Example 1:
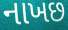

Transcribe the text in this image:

નાખછ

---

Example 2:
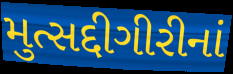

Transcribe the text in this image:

મુત્સદ્દીગીરીનાં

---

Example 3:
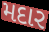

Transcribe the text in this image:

મદાર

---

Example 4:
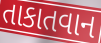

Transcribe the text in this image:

તાકાતવાન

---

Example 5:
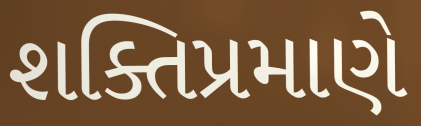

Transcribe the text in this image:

શક્તિપ્રમાણે